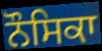
ਨੌਸਿਕਾ